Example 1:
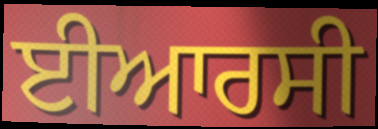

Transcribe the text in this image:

ਈਆਰਸੀ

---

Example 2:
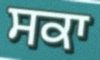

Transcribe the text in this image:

ਸਕਾ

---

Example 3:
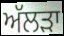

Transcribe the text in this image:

ਅੱਲੜਾ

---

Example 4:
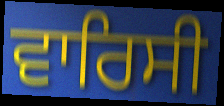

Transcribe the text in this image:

ਵਾਰਿਸੀ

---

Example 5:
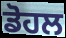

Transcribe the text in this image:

ਡੋਹਲ